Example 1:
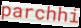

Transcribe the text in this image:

parchhi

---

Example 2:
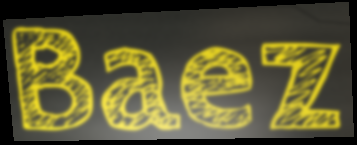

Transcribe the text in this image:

Baez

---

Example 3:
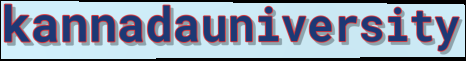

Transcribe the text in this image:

kannadauniversity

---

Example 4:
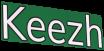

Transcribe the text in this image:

Keezh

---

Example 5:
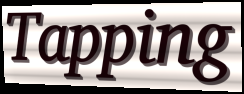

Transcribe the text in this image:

Tapping